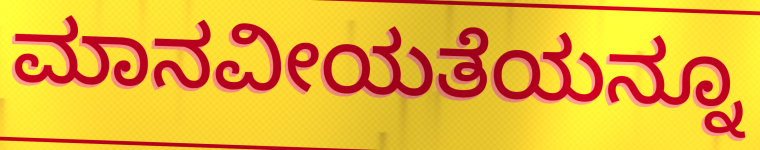
ಮಾನವೀಯತೆಯನ್ನೂ